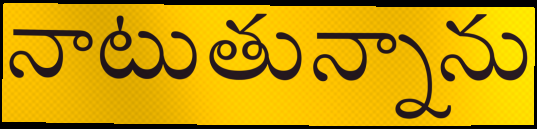
నాటుతున్నాను